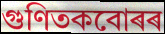
গুণিতকবোৰৰ